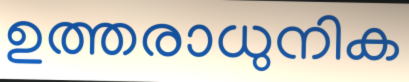
ഉത്തരാധുനിക